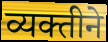
व्यक्तीने